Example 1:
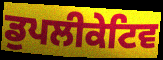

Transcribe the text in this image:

ਡੁਪਲੀਕੇਟਿਵ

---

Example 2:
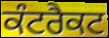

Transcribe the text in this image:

ਕੰਟਰੈਕਟ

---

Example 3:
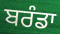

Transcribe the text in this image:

ਬਰੰਡਾ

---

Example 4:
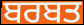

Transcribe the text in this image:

ਬਰਬਤ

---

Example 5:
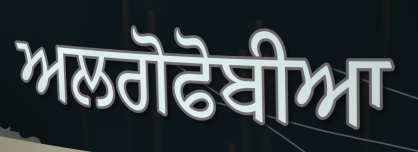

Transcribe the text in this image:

ਅਲਗੋਫੋਬੀਆ